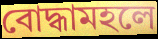
বোদ্ধামহলে